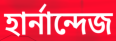
হার্নান্দেজ